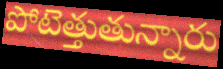
పోటెత్తుతున్నారు